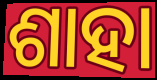
ଶାହା